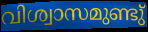
വിശ്വാസമുണ്ടു്